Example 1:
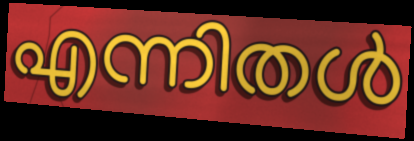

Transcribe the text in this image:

എന്നിതൾ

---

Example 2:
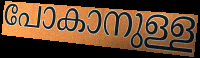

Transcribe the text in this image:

പോകാനുള്ള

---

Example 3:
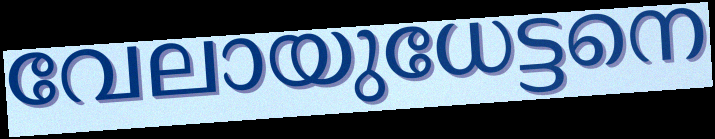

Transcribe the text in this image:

വേലായുധേട്ടനെ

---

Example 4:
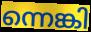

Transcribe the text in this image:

ന്നെങ്കി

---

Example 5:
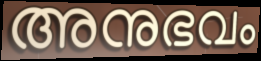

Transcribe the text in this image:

അനുഭവം